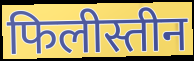
फिलीस्तीन